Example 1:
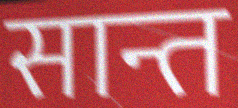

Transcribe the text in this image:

सान्त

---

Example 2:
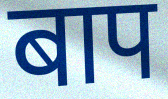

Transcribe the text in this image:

बाप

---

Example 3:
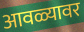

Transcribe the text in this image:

आवळ्यावर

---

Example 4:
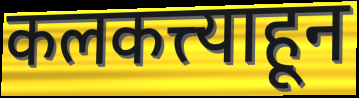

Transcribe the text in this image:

कलकत्त्याहून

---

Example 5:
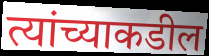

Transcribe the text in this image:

त्यांच्याकडील